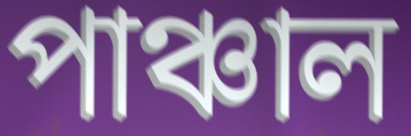
পাঞ্চাল